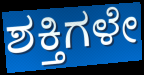
ಶಕ್ತಿಗಳೇ